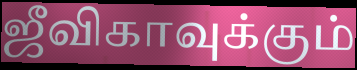
ஜீவிகாவுக்கும்